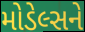
મોડેલ્સને